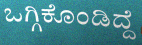
ಒಗ್ಗಿಕೊಂಡಿದ್ದೆ